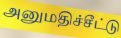
அனுமதிச்சீட்டு